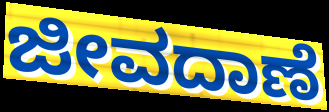
ಜೀವದಾಣೆ